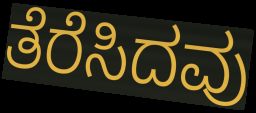
ತೆರೆಸಿದವು